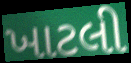
ખાટલી